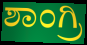
ಶಾಂಗ್ರಿ